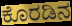
ಕೊರಡಿನ